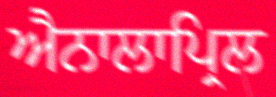
ਐਨਾਲਾਪ੍ਰਿਲ